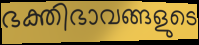
ഭക്തിഭാവങ്ങളുടെ